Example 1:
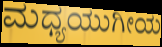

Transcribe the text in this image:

ಮಧ್ಯಯುಗೀಯ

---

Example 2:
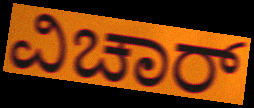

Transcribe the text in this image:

ವಿಚಾರ್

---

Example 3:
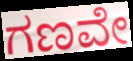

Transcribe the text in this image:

ಗಣವೇ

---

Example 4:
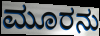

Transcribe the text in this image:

ಮೂರನು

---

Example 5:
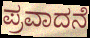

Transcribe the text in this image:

ಪ್ರವಾದನೆ